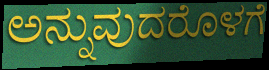
ಅನ್ನುವುದರೊಳಗೆ